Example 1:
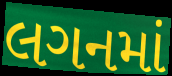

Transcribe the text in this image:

લગનમાં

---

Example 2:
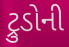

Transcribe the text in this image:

ટ્રુડોની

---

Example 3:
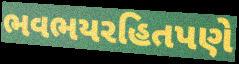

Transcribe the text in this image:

ભવભયરહિતપણે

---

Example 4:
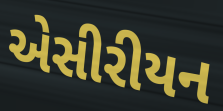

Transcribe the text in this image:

એસીરીયન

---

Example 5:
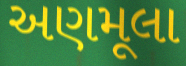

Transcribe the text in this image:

અણમૂલા